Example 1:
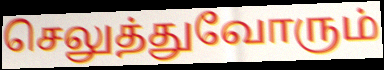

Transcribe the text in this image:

செலுத்துவோரும்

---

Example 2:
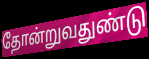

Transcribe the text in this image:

தோன்றுவதுண்டு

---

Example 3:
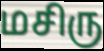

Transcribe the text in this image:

மசிரு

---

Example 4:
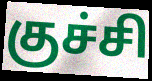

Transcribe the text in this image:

குச்சி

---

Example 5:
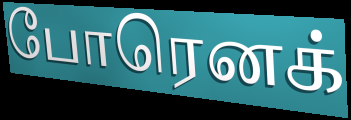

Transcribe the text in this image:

போரெனக்